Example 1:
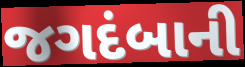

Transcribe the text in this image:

જગદંબાની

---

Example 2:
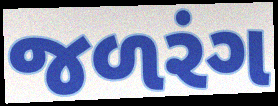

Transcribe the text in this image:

જળરંગ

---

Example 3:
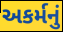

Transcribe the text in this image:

અકર્મનું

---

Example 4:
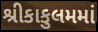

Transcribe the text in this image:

શ્રીકાકુલમમાં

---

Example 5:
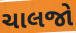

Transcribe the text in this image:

ચાલજો